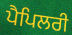
ਪੈਪਿਲਰੀ